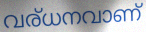
വര്ധനവാണ്